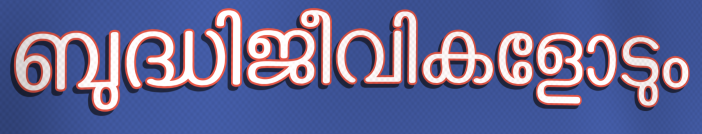
ബുദ്ധിജീവികളോടും